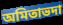
অমিতাভদা